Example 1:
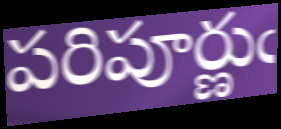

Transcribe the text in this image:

పరిపూర్ణుఁ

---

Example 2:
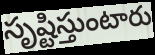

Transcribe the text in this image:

సృష్టిస్తుంటారు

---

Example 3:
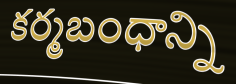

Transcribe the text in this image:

కర్మబంధాన్ని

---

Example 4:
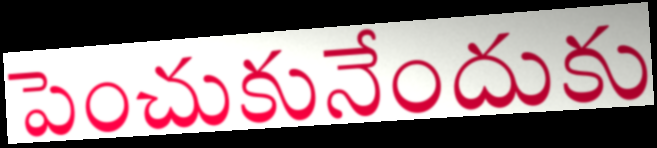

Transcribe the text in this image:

పెంచుకునేందుకు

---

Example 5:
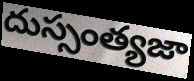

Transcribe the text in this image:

దుస్సంత్యజా